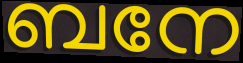
ബനേ